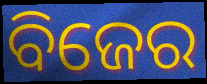
ବିଜେର